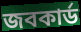
জবকার্ড